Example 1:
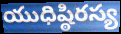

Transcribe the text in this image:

యుధిష్ఠిరస్య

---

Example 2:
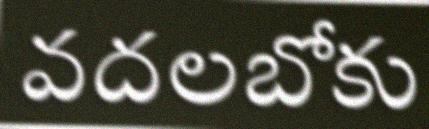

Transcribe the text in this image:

వదలబోకు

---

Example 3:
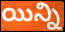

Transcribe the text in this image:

యిన్ని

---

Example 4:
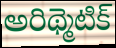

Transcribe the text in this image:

అరిథ్మెటిక్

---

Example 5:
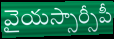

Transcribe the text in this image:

వైయస్సార్సీపీ